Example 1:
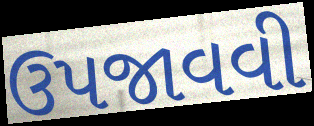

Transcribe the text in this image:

ઉપજાવવી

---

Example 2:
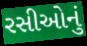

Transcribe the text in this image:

રસીઓનું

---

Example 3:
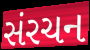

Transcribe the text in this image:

સંરચન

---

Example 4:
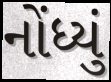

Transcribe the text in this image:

નોંધ્યું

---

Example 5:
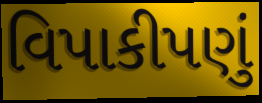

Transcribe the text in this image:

વિપાકીપણું